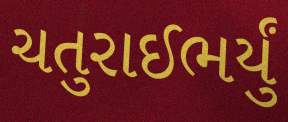
ચતુરાઈભર્યું